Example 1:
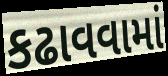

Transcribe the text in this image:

કઢાવવામાં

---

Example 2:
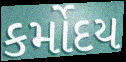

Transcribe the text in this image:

કર્મોદય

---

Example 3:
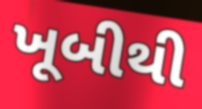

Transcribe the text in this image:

ખૂબીથી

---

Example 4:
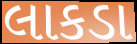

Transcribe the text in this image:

લાકડા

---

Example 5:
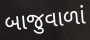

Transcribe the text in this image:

બાજુવાળાં